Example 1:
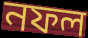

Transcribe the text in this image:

নফল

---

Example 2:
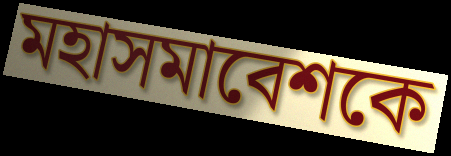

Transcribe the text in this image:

মহাসমাবেশকে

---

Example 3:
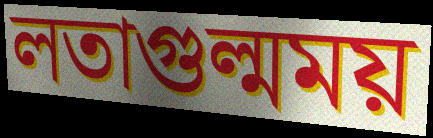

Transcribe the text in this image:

লতাগুল্মময়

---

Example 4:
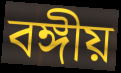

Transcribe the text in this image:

বঙ্গীয়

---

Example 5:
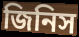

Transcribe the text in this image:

জিনিস